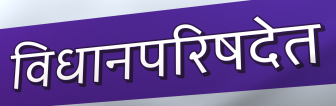
विधानपरिषदेत